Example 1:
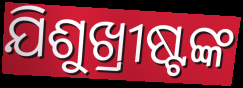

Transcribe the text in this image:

ଯିଶୁଖ୍ରୀଷ୍ଟଙ୍କ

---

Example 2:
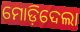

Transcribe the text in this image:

ମୋଡ଼ିଦେଲା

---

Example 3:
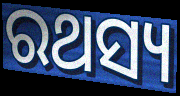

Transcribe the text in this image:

ରଥସ୍ୟ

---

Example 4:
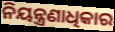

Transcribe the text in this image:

ନିୟନ୍ତ୍ରଣାଧିକାର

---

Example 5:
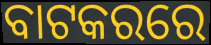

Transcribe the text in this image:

ବାଟକରରେ